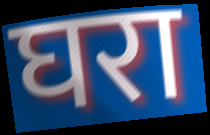
घरा